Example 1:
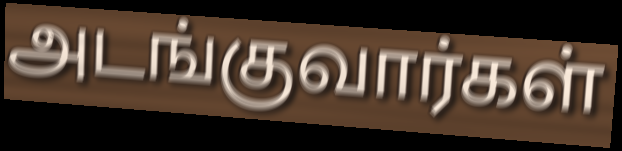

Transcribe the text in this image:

அடங்குவார்கள்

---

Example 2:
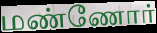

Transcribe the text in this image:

மண்ணோர்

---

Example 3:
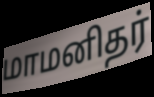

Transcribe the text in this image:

மாமனிதர்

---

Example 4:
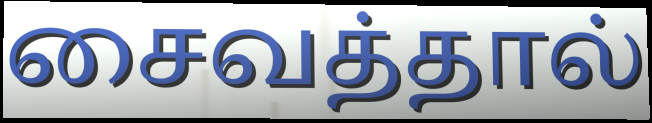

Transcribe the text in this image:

சைவத்தால்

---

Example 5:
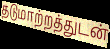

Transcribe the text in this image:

தடுமாற்றத்துடன்